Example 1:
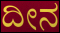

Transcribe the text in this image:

ದೀನ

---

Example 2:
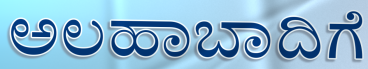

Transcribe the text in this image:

ಅಲಹಾಬಾದಿಗೆ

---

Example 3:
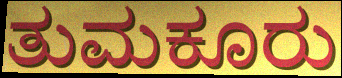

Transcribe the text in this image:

ತುಮಕೂರು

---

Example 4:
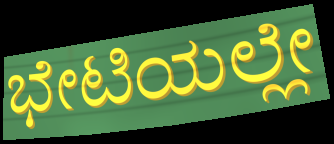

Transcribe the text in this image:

ಭೇಟಿಯಲ್ಲೇ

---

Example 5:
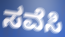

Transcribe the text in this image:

ಸವೆಸಿ